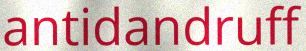
antidandruff